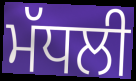
ਮੱਧਲੀ